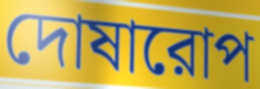
দোষারোপ